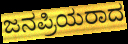
ಜನಪ್ರಿಯರಾದ